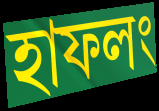
হাফলং